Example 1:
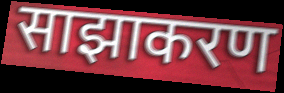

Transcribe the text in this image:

साझाकरण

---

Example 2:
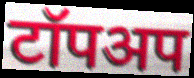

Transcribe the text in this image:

टॉपअप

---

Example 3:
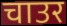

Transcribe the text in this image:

चाउर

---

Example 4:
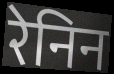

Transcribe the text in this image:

रेनिन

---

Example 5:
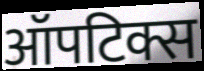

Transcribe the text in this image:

ऑपटिक्स